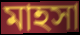
মাহসা